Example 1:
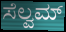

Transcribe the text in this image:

ಸೆಲ್ವಮ್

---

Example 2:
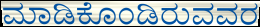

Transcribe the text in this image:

ಮಾಡಿಕೊಂಡಿರುವವರ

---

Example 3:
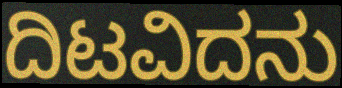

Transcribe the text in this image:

ದಿಟವಿದನು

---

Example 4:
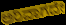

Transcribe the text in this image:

ಅರಿವಾಗದೇ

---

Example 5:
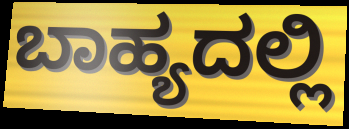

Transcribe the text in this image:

ಬಾಹ್ಯದಲ್ಲಿ